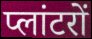
प्लांटरों